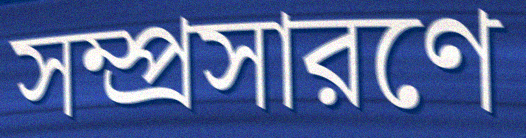
সম্প্রসারণে